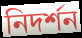
নিদৰ্শন